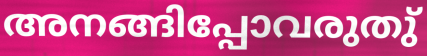
അനങ്ങിപ്പോവരുതു്